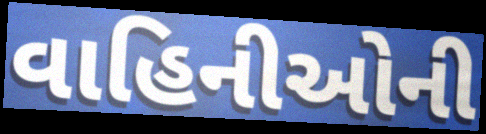
વાહિનીઓની